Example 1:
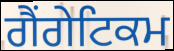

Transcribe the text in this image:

ਗੈਂਗੇਟਿਕਮ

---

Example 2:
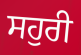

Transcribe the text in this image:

ਸਹੁਰੀ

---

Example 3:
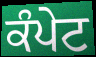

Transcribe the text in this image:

ਕੰਪੇਟ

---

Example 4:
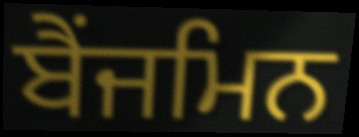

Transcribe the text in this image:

ਬੈਂਜਮਿਨ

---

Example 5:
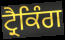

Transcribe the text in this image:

ਟ੍ਰੈਕਿੰਗ